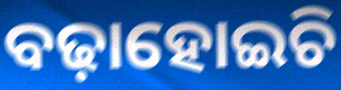
ବଢ଼ାହୋଇଚି